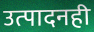
उत्पादनही